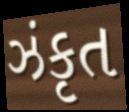
ઝંકૃત